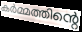
കർമ്മത്തിന്റെ